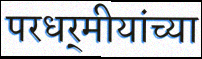
परधर्मीयांच्या